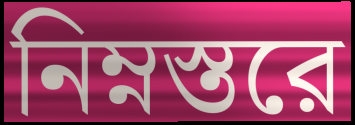
নিম্নস্তরে